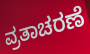
ವ್ರತಾಚರಣೆ